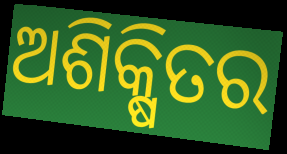
ଅଶିକ୍ଷିତର